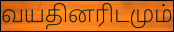
வயதினரிடமும்